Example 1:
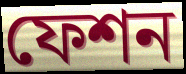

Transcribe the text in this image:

ফেশন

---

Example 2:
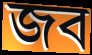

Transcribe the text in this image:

জব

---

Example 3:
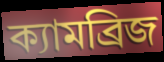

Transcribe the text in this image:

ক্যামব্রিজ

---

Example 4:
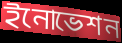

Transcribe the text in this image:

ইনোভেশন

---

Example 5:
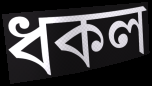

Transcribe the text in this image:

ধকল